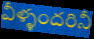
వీళ్ళందరినీ